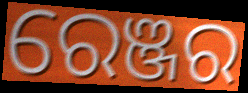
ରେଞ୍ଜର